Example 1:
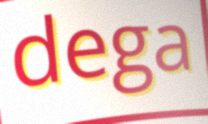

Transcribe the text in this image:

dega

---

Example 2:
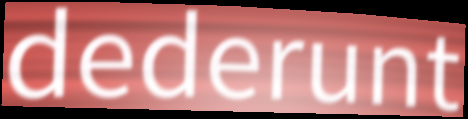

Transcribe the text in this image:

dederunt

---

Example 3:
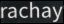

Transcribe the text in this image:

rachay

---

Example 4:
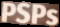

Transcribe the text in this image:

PSPs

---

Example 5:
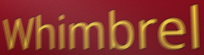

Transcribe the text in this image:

Whimbrel